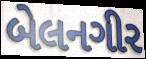
બેલનગીર